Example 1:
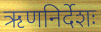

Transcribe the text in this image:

ऋणनिर्देशः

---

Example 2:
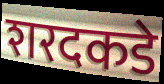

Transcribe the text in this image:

शरदकडे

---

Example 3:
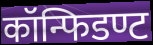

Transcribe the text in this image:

कॉन्फिडण्ट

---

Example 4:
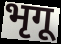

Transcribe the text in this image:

भृगू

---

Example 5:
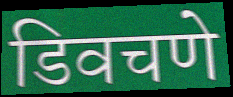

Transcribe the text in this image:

डिवचणे